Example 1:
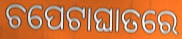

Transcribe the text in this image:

ଚପେଟାଘାତରେ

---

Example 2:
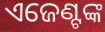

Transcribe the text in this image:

ଏଜେଣ୍ଟଙ୍କ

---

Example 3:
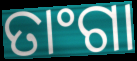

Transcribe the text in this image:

ତାଂଗା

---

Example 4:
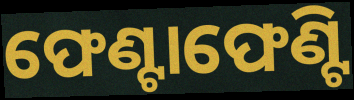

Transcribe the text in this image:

ଫେଣ୍ଟାଫେଣ୍ଟି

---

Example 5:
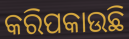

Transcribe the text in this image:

କରିପକାଉଛି